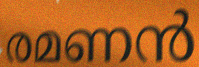
രമണൻ